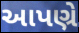
આપણ્રે